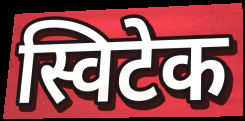
स्विटेक